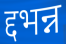
द्दभन्न